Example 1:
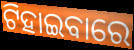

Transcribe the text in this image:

ଟିହାଇବାରେ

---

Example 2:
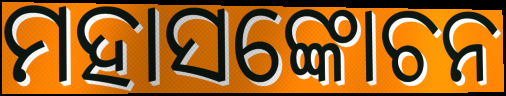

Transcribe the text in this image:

ମହାସଙ୍କୋଚନ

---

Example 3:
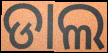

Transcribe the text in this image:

ଡାଲ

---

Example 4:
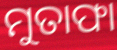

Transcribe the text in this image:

ମୁତାଫା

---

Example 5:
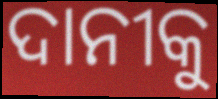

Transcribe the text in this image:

ଦାନୀକୁ